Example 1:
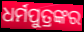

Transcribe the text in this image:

ଧର୍ମପୁତ୍ରଙ୍କର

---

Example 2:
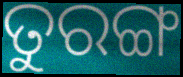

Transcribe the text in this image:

ତୁରଙ୍ଗ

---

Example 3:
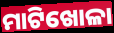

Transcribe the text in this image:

ମାଟିଖୋଳା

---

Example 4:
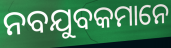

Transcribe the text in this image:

ନବଯୁବକମାନେ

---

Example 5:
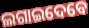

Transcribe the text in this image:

ଲଗାଇଦେବେ